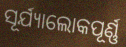
ସୂର୍ଯ୍ୟାଲୋକପୂର୍ଣ୍ଣ